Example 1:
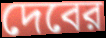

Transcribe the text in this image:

দেবের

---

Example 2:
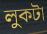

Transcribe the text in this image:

লুকটা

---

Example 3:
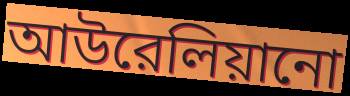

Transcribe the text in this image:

আউরেলিয়ানো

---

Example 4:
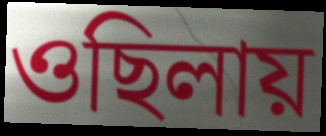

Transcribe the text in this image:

ওছিলায়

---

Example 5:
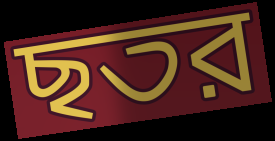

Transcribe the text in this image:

ছতর